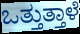
ಒತ್ತುತ್ತಾಳೆ